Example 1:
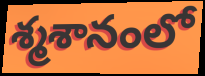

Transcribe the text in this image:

శ్మశానంలో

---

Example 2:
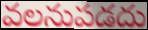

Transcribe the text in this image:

వలనుపడదు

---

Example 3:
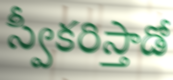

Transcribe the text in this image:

స్వీకరిస్తాడో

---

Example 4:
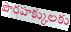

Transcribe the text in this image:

పౌరహక్కులకు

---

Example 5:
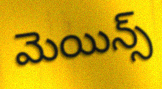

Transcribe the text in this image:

మెయిన్స్